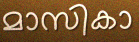
മാസികാ